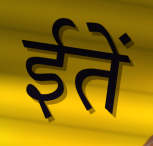
ईतें